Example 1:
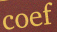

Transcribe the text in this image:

coef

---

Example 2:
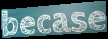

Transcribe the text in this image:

becase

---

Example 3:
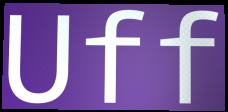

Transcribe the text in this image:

Uff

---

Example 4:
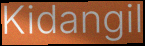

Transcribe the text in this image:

Kidangil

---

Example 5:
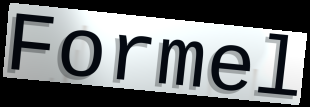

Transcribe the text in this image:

Formel